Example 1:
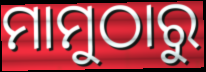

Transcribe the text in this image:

ମାମୁଠାରୁ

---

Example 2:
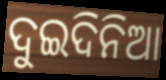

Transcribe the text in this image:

ଦୁଇଦିନିଆ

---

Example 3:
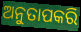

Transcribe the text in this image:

ଅନୁତାପକରି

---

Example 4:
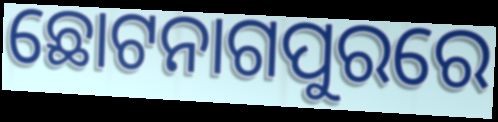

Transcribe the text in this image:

ଛୋଟନାଗପୁରରେ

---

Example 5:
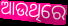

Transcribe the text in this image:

ଆଉଥିରେ